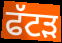
ਫੱਟੜ